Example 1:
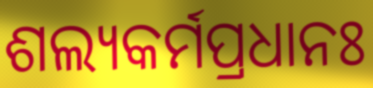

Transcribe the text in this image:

ଶଲ୍ୟକର୍ମପ୍ରଧାନଃ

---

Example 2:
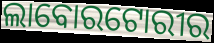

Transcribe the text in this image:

ଲାବୋରଟୋରୀର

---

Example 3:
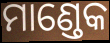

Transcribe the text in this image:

ମାଣ୍ଡେକ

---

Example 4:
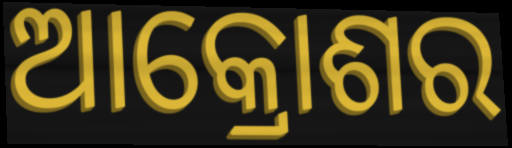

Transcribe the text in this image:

ଆକ୍ରୋଶର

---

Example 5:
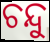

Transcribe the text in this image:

ଚନ୍ଦୁ